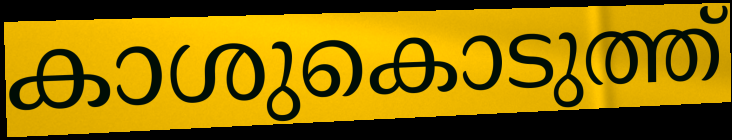
കാശുകൊടുത്ത്